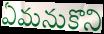
ఏమనుకొని